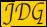
JDG